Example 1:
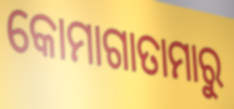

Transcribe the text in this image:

କୋମାଗାତାମାରୁ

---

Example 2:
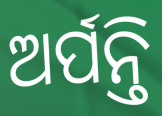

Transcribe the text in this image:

ଅର୍ପନ୍ତି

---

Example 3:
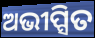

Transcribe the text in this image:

ଅଭୀପ୍ସିତ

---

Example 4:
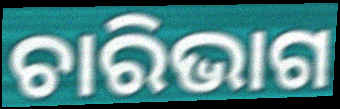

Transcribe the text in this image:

ଚାରିଭାଗ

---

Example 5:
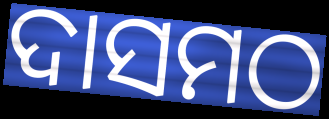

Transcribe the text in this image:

ଦାସମଠ